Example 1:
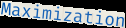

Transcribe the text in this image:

Maximization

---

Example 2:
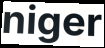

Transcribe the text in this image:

niger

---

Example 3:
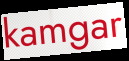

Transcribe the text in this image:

kamgar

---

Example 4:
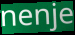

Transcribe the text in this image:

nenje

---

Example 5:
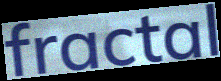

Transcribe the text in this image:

fractal